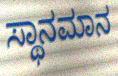
ಸ್ಥಾನಮಾನ